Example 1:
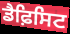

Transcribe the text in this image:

ਡੈਫ਼ਿਸਿਟ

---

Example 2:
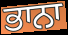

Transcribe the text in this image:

ਭਾਨਾ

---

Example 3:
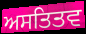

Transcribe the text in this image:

ਅਸਤਿਤਵ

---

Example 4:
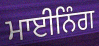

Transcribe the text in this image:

ਮਾਈਨਿੰਗ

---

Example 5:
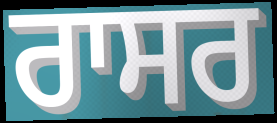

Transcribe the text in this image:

ਰਾਸਰ